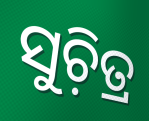
ସୁଚ଼ିତ୍ର